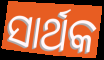
ସାର୍ଥକ